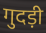
गुदड़ी